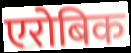
एरोबिक